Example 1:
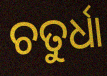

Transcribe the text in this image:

ଚତୁର୍ଧା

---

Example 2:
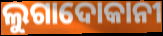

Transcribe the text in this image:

ଲୁଗାଦୋକାନୀ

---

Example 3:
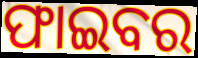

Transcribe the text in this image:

ଫାଇବର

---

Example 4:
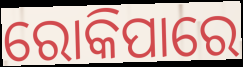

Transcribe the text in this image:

ରୋକିପାରେ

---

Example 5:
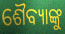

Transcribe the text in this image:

ଶୈବ୍ୟାଙ୍କୁ